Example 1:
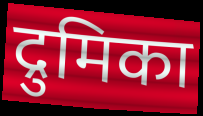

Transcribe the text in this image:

द्रुमिका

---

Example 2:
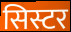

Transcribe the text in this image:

सिस्टर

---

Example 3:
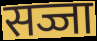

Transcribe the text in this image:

सज्जा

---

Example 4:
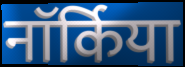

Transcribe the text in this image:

नॉर्किया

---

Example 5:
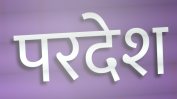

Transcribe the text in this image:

परदेश